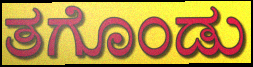
ತಗೊಂಡು